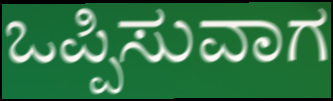
ಒಪ್ಪಿಸುವಾಗ